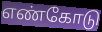
எண்கோடு